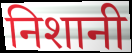
निशानी